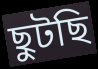
ছুটছি